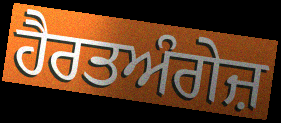
ਹੈਰਤਅੰਗੇਜ਼